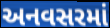
અનવસરમાં